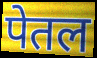
पेतल